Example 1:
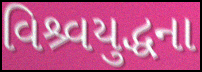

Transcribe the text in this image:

વિશ્ર્વયુદ્ધના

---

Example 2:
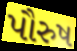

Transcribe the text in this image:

પૌરુષ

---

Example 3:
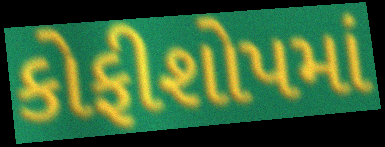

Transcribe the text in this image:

કોફીશોપમાં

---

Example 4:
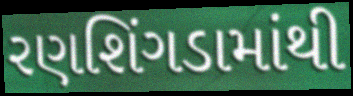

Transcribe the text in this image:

રણશિંગડામાંથી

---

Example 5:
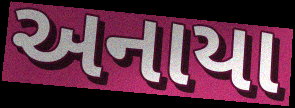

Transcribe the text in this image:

અનાયા